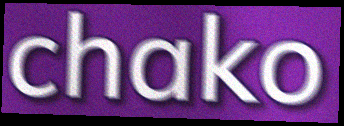
chako